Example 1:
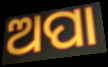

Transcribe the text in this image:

ଅପା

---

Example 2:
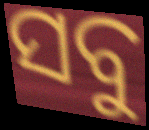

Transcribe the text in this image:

ସବୁ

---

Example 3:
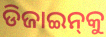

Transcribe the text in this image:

ଡିଜାଇନ୍‌କୁ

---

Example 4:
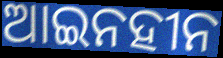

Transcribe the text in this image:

ଆଇନହୀନ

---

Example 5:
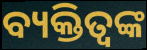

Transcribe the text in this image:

ବ୍ୟକ୍ତିତ୍ବଙ୍କ